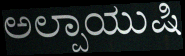
ಅಲ್ಪಾಯುಷಿ